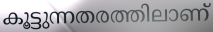
കൂട്ടുന്നതരത്തിലാണ്